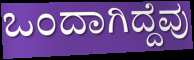
ಒಂದಾಗಿದ್ದೆವು